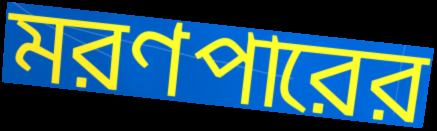
মরণপারের